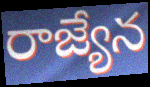
రాజ్యేన